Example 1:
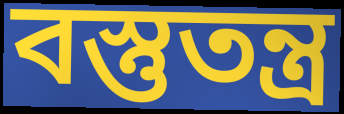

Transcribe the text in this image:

বস্তুতন্ত্র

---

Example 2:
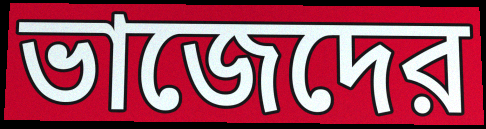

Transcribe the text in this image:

ভাজেদের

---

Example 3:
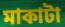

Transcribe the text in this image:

মাকাটা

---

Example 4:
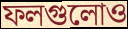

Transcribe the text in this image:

ফলগুলোও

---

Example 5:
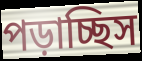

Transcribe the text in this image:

পড়াচ্ছিস